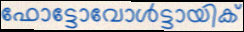
ഫോട്ടോവോൾട്ടായിക്